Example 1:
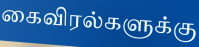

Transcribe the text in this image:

கைவிரல்களுக்கு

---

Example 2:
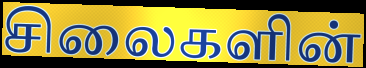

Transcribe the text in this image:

சிலைகளின்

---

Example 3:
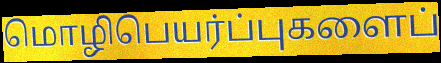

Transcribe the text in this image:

மொழிபெயர்ப்புகளைப்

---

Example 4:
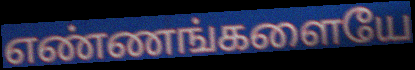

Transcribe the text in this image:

எண்ணங்களையே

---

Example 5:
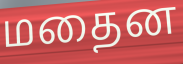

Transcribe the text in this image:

மதைன